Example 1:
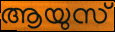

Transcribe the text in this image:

ആയുസ്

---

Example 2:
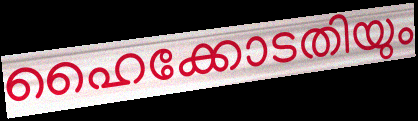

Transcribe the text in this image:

ഹൈക്കോടതിയും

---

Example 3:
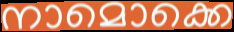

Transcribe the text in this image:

നാമൊക്കെ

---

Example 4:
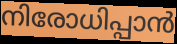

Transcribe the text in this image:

നിരോധിപ്പാൻ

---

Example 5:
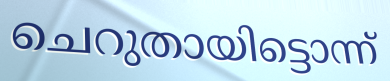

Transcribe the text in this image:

ചെറുതായിട്ടൊന്ന്